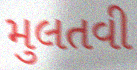
મુલતવી